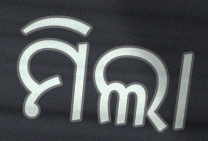
ମିଲା